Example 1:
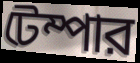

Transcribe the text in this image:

টেম্পার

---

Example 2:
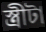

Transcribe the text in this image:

স্ত্রীটা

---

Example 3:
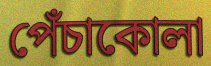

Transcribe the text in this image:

পেঁচাকোলা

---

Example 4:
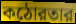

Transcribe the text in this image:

কঠোরতার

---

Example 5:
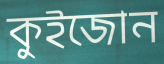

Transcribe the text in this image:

কুইজোন